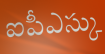
ఐపీఎస్కు